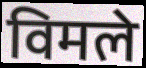
विमले